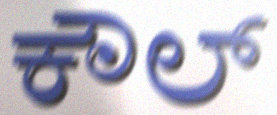
ಕೌಲ್